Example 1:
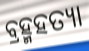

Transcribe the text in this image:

ବ୍ରହ୍ମହତ୍ୟା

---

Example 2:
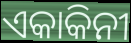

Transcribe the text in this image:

ଏକାକିନୀ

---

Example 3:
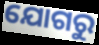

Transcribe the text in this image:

ଯୋଗରୁ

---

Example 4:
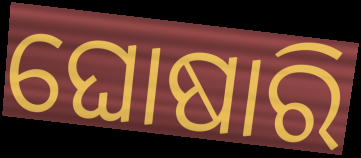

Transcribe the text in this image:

ଘୋଷାରି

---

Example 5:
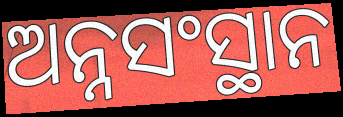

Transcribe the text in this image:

ଅନ୍ନସଂସ୍ଥାନ